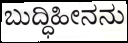
ಬುದ್ಧಿಹೀನನು